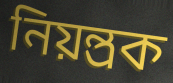
নিয়ন্ত্রক